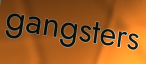
gangsters